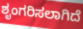
ಶೃಂಗರಿಸಲಾಗಿದೆ